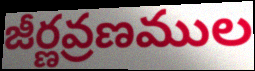
జీర్ణవ్రణముల